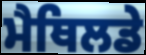
ਮੈਥਿਲਡੇ